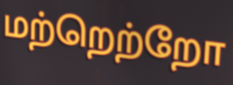
மற்றெற்றோ